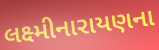
લક્ષ્મીનારાયણના